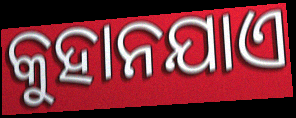
କୁହାନଯାଏ